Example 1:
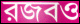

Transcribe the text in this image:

রজবও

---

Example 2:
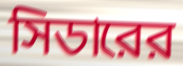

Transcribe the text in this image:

সিডারের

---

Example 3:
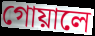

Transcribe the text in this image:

গোয়ালে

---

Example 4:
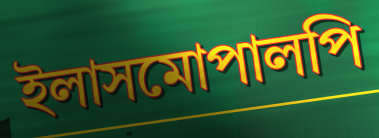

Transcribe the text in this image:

ইলাসমোপালপি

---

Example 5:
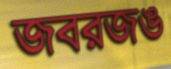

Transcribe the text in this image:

জবরজঙ